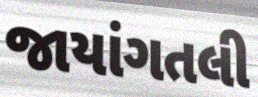
જાયાંગતલી